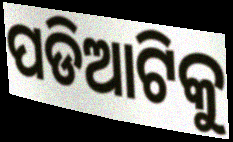
ପଡିଆଟିକୁ